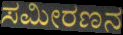
ಸಮೀರಣನ